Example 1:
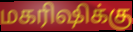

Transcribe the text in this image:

மகரிஷிக்கு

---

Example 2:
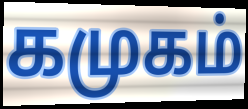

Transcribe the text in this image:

கமுகம்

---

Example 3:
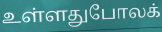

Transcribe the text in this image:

உள்ளதுபோலக்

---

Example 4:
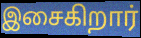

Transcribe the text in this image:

இசைகிறார்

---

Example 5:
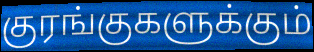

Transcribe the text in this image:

குரங்குகளுக்கும்